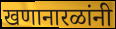
खणानारळांनी